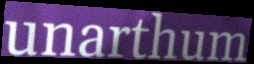
unarthum